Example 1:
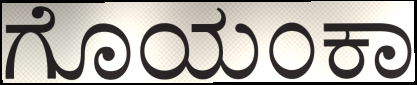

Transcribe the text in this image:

ಗೊಯಂಕಾ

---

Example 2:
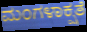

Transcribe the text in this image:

ಮಂಗಳಾಕ್ಷತೆ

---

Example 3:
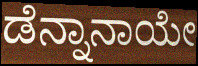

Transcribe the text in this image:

ಡೆನ್ನಾನಾಯೇ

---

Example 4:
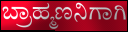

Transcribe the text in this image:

ಬ್ರಾಹ್ಮಣನಿಗಾಗಿ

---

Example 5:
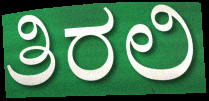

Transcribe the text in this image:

ತಿರಲಿ